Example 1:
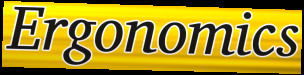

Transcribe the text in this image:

Ergonomics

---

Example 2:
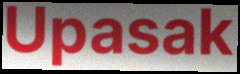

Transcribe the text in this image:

Upasak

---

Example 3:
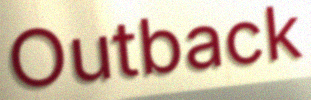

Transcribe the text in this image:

Outback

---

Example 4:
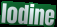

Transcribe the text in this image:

Iodine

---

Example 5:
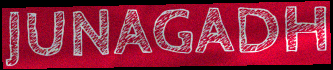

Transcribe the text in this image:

JUNAGADH